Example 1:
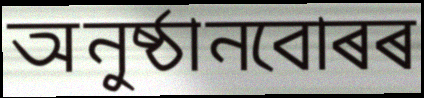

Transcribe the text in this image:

অনুষ্ঠানবোৰৰ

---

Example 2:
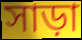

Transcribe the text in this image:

সাড়া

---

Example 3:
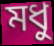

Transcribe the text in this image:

মধু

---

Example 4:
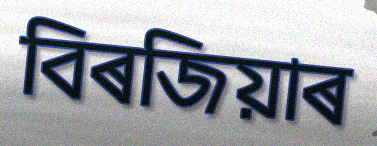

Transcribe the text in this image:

বিৰজিয়াৰ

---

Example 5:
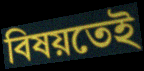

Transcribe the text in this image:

বিষয়তেই